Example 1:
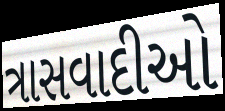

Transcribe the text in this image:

ત્રાસવાદીઓ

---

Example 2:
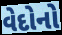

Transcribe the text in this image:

વેદોનો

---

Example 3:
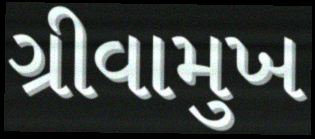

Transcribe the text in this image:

ગ્રીવામુખ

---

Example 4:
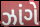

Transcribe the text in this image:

ઝાંગે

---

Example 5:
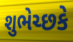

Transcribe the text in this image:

શુભેચ્છકે